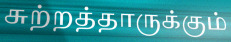
சுற்றத்தாருக்கும்